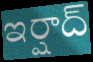
ఇర్షాద్